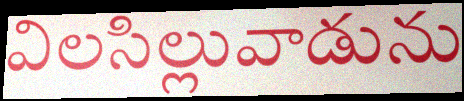
విలసిల్లువాడును